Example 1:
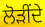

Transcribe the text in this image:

ਲੋੜੀਂਦੇ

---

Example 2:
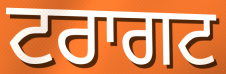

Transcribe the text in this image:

ਟਰਾਗਟ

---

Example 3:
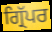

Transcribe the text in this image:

ਗ੍ਰਿੱਪਰ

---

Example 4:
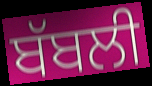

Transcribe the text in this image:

ਬੱਬਲੀ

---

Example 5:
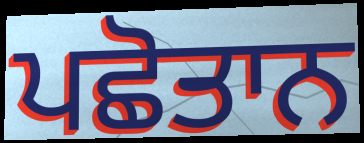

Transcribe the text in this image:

ਪਛੋਤਾਨ